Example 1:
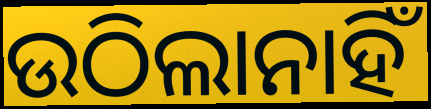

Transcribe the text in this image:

ଉଠିଲାନାହିଁ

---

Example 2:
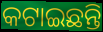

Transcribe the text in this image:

କଟାଇଛନ୍ତି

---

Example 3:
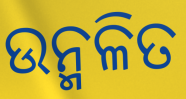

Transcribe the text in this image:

ଉନ୍ମଳିତ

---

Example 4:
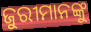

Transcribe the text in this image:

ଜୁରୀମାନଙ୍କୁ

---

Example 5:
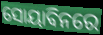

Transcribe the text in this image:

ସୋୟାବିନରେ